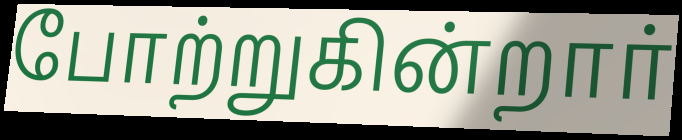
போற்றுகின்றார்